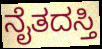
ನೈತದಸ್ತಿ